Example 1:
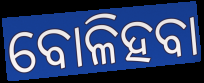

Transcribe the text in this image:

ବୋଳିହବା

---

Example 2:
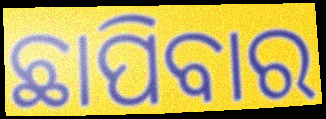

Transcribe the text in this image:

ଛାପିବାର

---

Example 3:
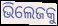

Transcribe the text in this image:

ଭିଲେଜକୁ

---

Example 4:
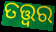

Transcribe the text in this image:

ତତ୍ତ୍ବର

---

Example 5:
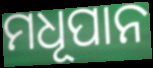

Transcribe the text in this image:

ମଧୂପାନ